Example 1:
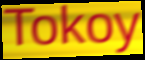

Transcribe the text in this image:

Tokoy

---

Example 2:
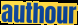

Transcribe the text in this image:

authour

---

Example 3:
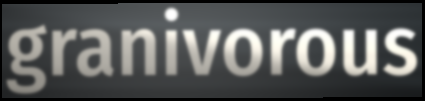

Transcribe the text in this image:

granivorous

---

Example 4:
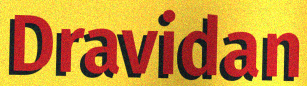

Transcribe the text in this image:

Dravidan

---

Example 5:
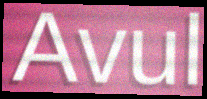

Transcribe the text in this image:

Avul